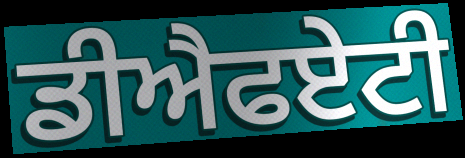
ਡੀਐਫਏਟੀ